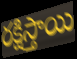
రక్షిస్తాయి